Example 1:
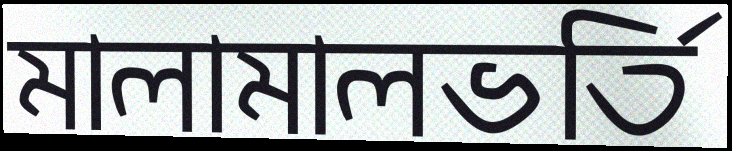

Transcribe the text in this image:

মালামালভর্তি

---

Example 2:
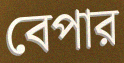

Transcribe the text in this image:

বেপার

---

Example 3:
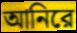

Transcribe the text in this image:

আনিরে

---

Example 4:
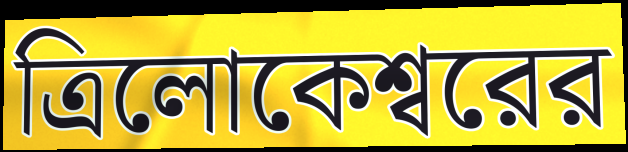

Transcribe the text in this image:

ত্রিলোকেশ্বরের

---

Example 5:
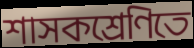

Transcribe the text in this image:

শাসকশ্রেণিতে